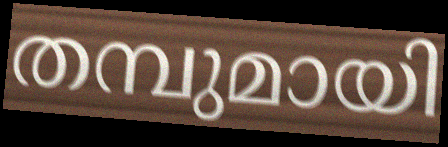
തമ്പുമായി